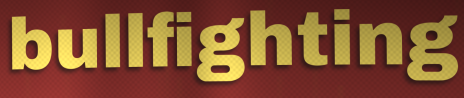
bullfighting